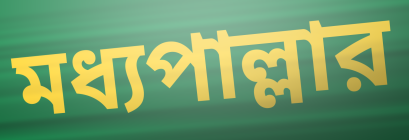
মধ্যপাল্লার